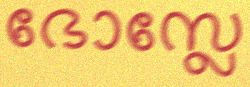
ഭോസ്ലേ